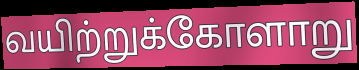
வயிற்றுக்கோளாறு